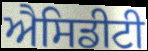
ਐਸਿਡੀਟੀ